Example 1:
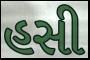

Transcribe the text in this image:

હસી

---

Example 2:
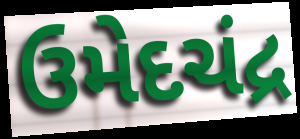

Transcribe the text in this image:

ઉમેદચંદ્ર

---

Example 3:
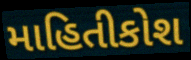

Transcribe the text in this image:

માહિતીકોશ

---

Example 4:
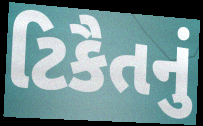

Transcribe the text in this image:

ટિકૈતનું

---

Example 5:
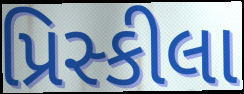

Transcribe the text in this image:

પ્રિસ્કીલા